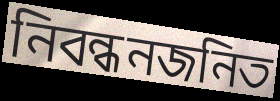
নিবন্ধনজনিত